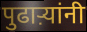
पुढाऱ्‍यांनी